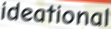
ideational